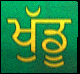
ਖੁੱਡੂ